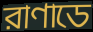
রাণাডে